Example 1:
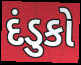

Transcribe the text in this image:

દંડુકો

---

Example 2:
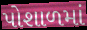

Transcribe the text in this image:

પોશાળમાં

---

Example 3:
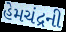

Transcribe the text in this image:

હેમચંદ્રની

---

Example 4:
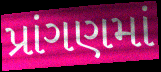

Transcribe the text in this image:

પ્રાંગણમાં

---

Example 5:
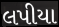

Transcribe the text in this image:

લપીયા